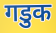
गडुक